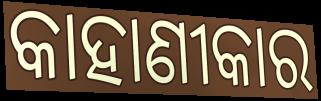
କାହାଣୀକାର